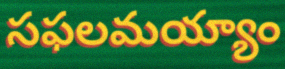
సఫలమయ్యాం